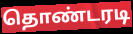
தொண்டரடி